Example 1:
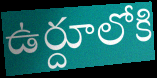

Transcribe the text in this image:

ఉర్దూలోకి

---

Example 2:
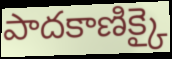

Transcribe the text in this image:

పాదకాణిక్కై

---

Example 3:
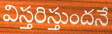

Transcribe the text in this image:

విస్తరిస్తుందనే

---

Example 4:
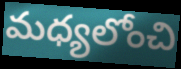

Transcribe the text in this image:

మధ్యలోంచి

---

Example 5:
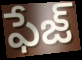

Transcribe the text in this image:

ఫేజ్